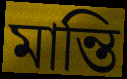
মান্তি